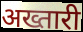
अख्तारी